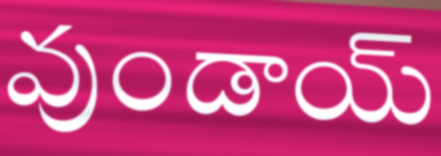
వుండాయ్